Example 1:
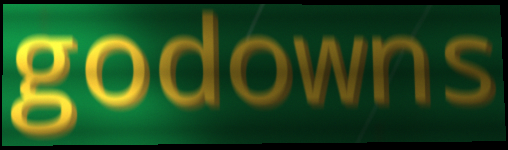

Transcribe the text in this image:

godowns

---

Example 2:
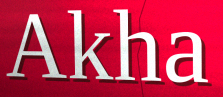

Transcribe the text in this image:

Akha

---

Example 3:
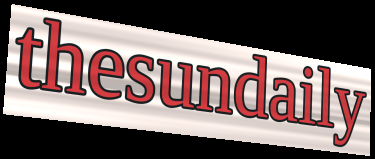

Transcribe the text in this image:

thesundaily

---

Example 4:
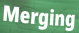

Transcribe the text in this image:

Merging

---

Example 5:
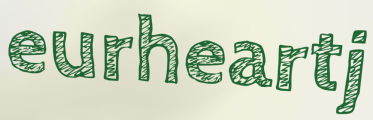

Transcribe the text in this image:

eurheartj